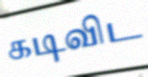
கடிவிட